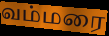
வம்மரை